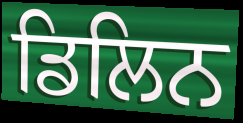
ਡਿਲਿਨ